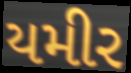
યમીર